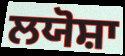
ਲਯੋਸ਼ਾ